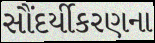
સૌંદર્યીકરણના